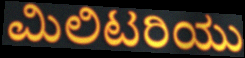
ಮಿಲಿಟರಿಯು